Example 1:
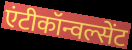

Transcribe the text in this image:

एंटीकॉन्वल्सेंट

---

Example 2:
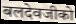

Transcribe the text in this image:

बलदेवजीको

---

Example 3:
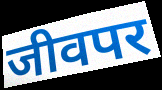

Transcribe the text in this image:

जीवपर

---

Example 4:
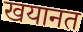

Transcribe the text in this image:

खयानत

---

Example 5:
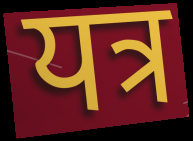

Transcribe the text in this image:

यत्र